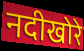
नदीखोरे